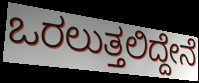
ಒರಲುತ್ತಲಿದ್ದೇನೆ